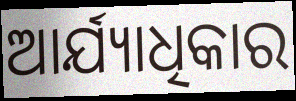
ଆର୍ଯ୍ୟାଧିକାର